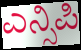
ಎನ್ಸಿಪಿ